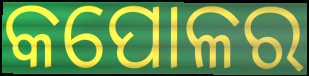
କପୋଳର